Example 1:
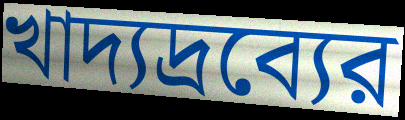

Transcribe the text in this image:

খাদ্যদ্রব্যের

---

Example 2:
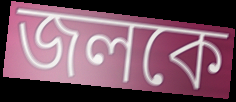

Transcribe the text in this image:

জলকে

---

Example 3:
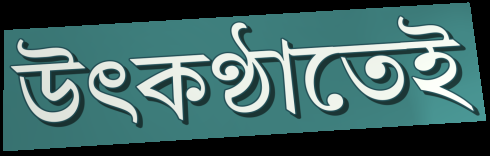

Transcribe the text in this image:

উৎকণ্ঠাতেই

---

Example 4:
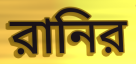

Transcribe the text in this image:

রানির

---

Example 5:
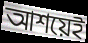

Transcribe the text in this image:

আশয়েই